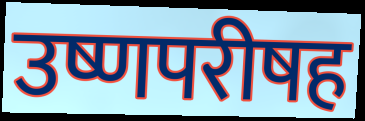
उष्णपरीषह